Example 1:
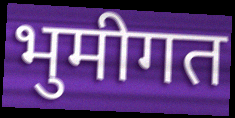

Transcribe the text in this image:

भुमीगत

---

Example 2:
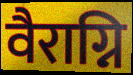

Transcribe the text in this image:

वैराग्नि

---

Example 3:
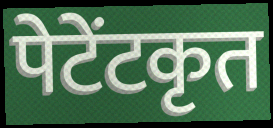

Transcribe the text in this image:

पेटेंटकृत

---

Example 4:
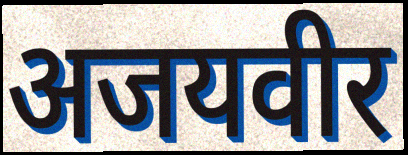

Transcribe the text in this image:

अजयवीर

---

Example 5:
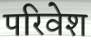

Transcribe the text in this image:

परिवेश